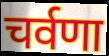
चर्वणा